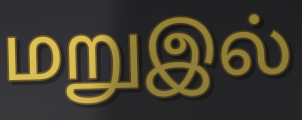
மறுஇல்